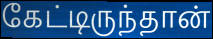
கேட்டிருந்தான்